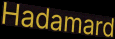
Hadamard